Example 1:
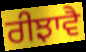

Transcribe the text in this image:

ਰੀਝਾਵੈ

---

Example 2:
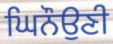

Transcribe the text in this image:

ਘਿਨੌਉਣੀ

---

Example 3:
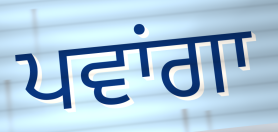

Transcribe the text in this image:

ਪਵਾਂਗਾ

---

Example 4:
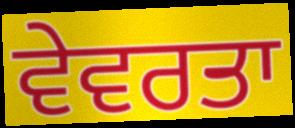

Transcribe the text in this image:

ਵੇਵਰਤਾ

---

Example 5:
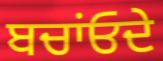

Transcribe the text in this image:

ਬਚਾਂਓਦੇ